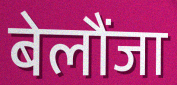
बेलौंजा